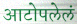
आटोपलेलं